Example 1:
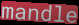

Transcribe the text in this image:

mandle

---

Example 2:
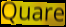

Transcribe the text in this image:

Quare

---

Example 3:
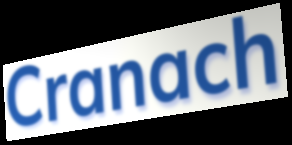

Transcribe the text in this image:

Cranach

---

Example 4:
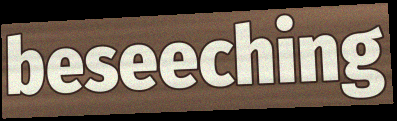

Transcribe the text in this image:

beseeching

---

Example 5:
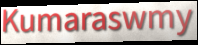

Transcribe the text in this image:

Kumaraswmy